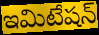
ఇమిటేషన్